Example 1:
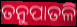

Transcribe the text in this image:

ତନୁପାତଳି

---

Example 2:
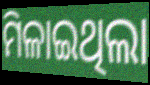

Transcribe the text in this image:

ମିଳାଇଥିଲା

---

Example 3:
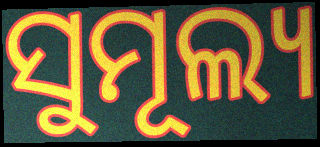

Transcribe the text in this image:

ସୁମୂଲ୍ୟ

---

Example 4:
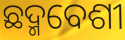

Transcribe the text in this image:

ଛଦ୍ମବେଶୀ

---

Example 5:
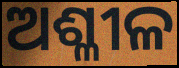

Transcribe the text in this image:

ଅଶ୍ଳୀଳ